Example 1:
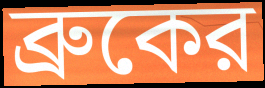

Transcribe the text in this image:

ব্রুকের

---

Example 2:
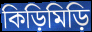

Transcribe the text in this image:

কিড়িমিড়ি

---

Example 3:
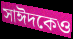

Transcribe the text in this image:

সাঈদকেও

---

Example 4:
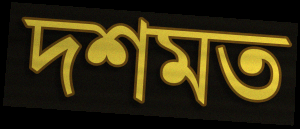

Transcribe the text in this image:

দশমত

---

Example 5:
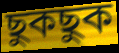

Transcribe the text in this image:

ছুকছুক